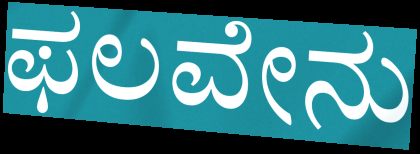
ಫಲವೇನು